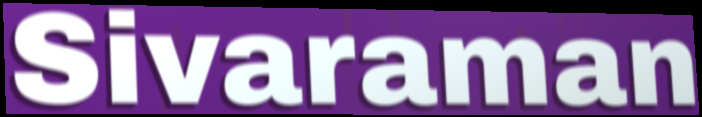
Sivaraman